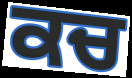
ਕਚ